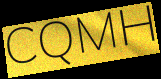
CQMH